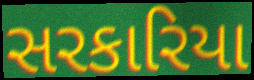
સરકારિયા